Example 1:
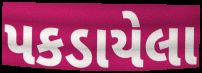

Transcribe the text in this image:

પકડાયેલા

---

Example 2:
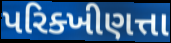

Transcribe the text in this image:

પરિક્ખીણત્તા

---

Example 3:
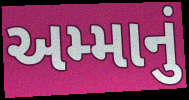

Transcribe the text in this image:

અમ્માનું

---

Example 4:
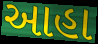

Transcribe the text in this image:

આહા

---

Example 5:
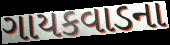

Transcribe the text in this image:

ગાયકવાડના